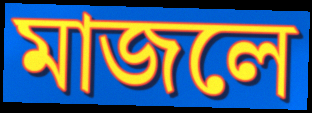
মাজলে